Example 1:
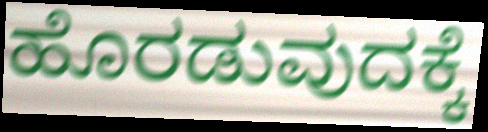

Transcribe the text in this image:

ಹೊರಡುವುದಕ್ಕೆ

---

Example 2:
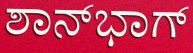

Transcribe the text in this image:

ಶಾನ್‍ಭಾಗ್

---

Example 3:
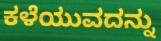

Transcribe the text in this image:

ಕಳೆಯುವದನ್ನು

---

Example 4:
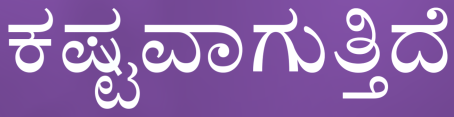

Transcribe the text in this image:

ಕಷ್ಟವಾಗುತ್ತಿದೆ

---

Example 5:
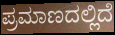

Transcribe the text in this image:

ಪ್ರಮಾಣದಲ್ಲಿದೆ